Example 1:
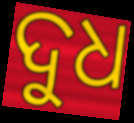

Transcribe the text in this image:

ଦୁଧ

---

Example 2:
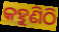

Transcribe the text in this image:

କହୁଣିଠି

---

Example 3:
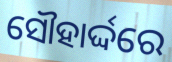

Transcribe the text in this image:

ସୌହାର୍ଦ୍ଦରେ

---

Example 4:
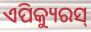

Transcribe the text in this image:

ଏପିକ୍ୟୁରସ୍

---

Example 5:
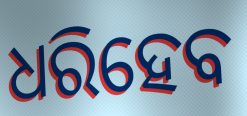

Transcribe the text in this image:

ଧରିହେବ